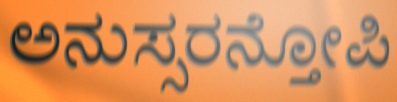
ಅನುಸ್ಸರನ್ತೋಪಿ